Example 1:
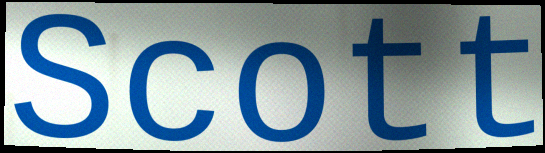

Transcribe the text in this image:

Scott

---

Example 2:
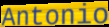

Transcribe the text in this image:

Antonio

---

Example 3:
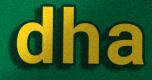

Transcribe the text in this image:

dha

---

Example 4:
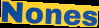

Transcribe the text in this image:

Nones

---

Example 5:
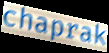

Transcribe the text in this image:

chaprak